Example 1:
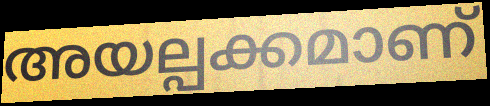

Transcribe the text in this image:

അയല്പക്കമാണ്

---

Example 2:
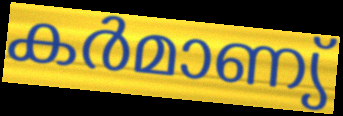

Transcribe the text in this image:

കർമാണ്യ്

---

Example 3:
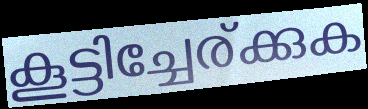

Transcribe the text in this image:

കൂട്ടിച്ചേര്ക്കുക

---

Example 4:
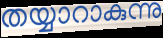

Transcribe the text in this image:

തയ്യാറാകുന്നു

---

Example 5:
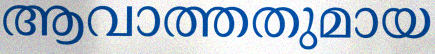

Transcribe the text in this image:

ആവാത്തതുമായ